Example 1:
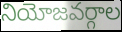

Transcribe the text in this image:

నియోజవర్గాల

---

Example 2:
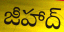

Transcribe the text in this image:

జీహాద్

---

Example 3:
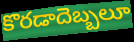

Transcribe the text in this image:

కొరడాదెబ్బలూ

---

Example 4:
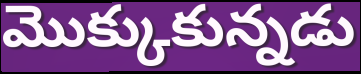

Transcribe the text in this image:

మొక్కుకున్నడు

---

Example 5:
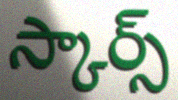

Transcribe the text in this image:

స్కార్స్